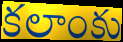
కలాంకు